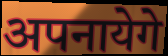
अपनायेगे